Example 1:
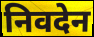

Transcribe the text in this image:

निवदेन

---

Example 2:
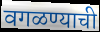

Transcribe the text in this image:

वगळण्याची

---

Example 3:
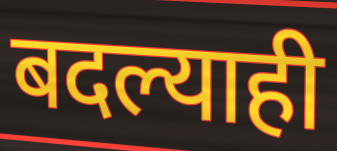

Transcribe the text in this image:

बदल्याही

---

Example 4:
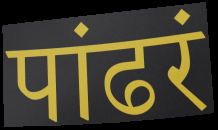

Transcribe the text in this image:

पांढरं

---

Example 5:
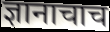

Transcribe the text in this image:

ज्ञानाचाच